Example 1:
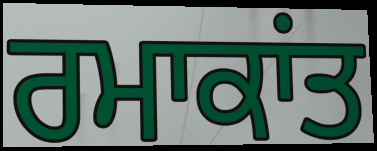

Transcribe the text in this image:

ਰਮਾਕਾਂਤ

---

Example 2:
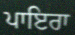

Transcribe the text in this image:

ਪਾਇਰਾ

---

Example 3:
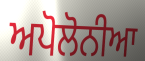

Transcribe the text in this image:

ਅਪੋਲੋਨੀਆ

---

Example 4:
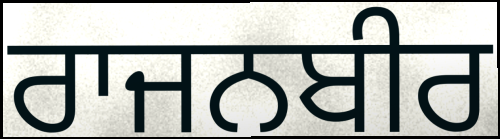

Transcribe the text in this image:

ਰਾਜਨਬੀਰ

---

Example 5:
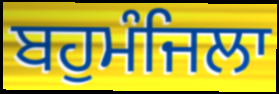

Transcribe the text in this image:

ਬਹੁਮੰਜਿਲਾ